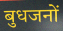
बुधजनों